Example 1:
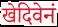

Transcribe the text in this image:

खेदिवेनं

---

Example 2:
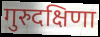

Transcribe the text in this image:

गुरुदक्षिणा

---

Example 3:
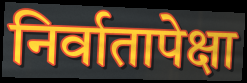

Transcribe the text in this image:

निर्वातापेक्षा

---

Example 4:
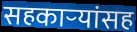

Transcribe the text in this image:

सहकाऱ्यांसह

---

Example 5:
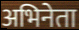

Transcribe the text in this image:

अभिनेता